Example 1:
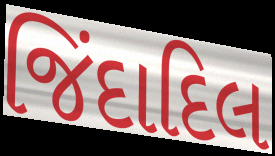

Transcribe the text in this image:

જિંદાદિલ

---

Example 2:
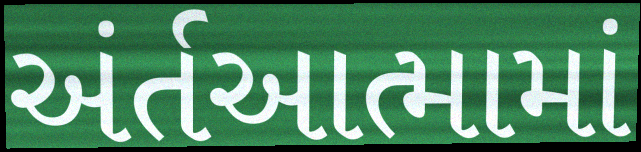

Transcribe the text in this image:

અંર્તઆત્મામાં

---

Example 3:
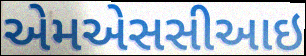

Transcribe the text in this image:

એમએસસીઆઇ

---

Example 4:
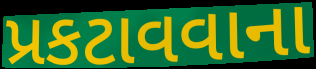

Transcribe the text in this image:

પ્રકટાવવાના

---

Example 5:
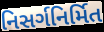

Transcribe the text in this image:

નિસર્ગનિર્મિત